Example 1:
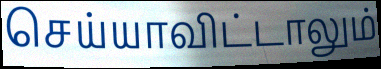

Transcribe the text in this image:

செய்யாவிட்டாலும்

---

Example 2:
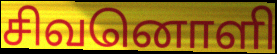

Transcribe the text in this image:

சிவனொளி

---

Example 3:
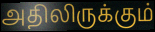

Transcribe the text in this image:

அதிலிருக்கும்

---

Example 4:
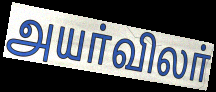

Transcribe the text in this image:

அயர்விலர்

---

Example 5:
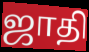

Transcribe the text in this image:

ஜாதி